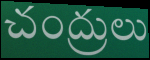
చంద్రులు